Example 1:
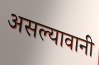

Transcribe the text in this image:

असल्यावानी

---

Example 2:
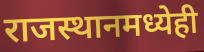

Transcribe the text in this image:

राजस्थानमध्येही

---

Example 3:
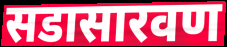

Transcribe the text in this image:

सडासारवण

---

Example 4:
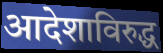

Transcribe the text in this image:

आदेशाविरुद्ध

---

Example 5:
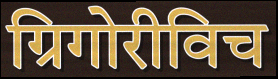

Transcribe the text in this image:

ग्रिगोरीविच